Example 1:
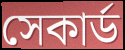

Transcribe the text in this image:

সেকার্ড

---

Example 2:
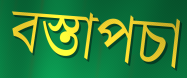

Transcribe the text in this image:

বস্তাপচা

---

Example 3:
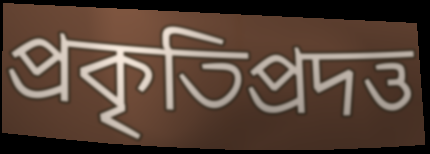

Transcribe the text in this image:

প্রকৃতিপ্রদত্ত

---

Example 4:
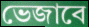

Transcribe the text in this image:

ভেজাবে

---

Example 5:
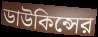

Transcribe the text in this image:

ডাউকিন্সের